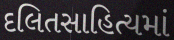
દલિતસાહિત્યમાં